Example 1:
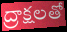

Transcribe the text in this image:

ద్రాక్షలతో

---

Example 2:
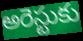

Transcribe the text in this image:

అరెస్టుకు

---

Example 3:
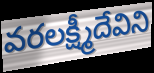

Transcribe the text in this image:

వరలక్ష్మీదేవిని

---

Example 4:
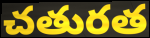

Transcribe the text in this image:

చతురత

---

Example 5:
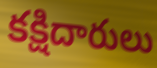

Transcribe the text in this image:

కక్షిదారులు